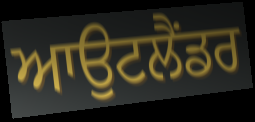
ਆਉਟਲੈਂਡਰ